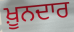
ਖ਼ੂਨਦਾਰ